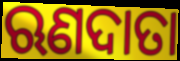
ଋଣଦାତା